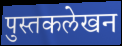
पुस्तकलेखन